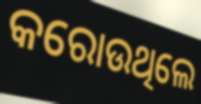
କରୋଉଥିଲେ